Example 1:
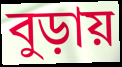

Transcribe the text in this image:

বুড়ায়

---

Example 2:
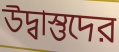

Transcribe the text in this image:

উদ্বাস্তুদের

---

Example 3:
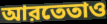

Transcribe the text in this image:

আরতেতাও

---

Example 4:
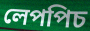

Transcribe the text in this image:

লেপপিচ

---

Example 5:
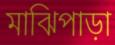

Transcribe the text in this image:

মাঝিপাড়া